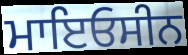
ਮਾਇਓਸੀਨ